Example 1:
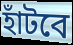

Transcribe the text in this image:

হাঁটবে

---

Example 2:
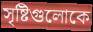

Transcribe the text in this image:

সৃষ্টিগুলোকে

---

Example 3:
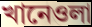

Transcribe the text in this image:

খানেওলা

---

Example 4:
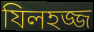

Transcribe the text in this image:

যিলহজ্জ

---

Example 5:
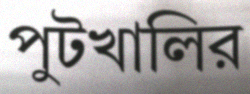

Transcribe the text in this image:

পুটখালির